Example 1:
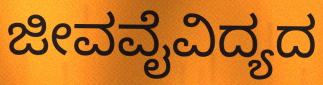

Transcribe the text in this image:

ಜೀವವೈವಿದ್ಯದ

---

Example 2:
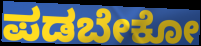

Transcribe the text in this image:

ಪಡಬೇಕೋ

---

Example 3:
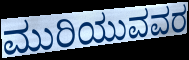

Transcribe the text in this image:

ಮುರಿಯುವವರ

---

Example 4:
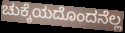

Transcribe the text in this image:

ಚುಕ್ಕೆಯದೊಂದನೆಲ್ಲ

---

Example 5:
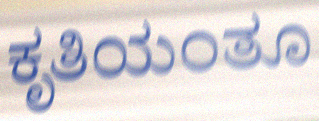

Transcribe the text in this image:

ಕೃತಿಯಂತೂ